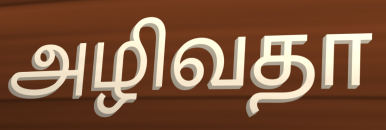
அழிவதா